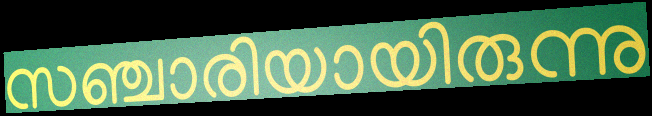
സഞ്ചാരിയായിരുന്നു